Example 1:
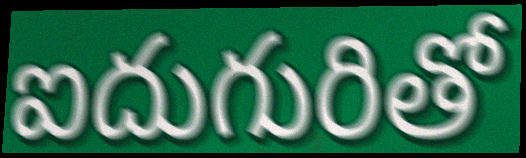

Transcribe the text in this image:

ఐదుగురితో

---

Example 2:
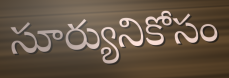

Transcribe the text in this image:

సూర్యునికోసం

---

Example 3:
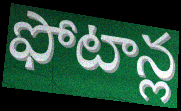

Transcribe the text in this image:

ఫోటాన్ల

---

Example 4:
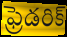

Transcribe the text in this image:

ఫ్రెడరిక్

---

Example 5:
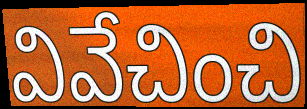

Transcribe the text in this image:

వివేచించి